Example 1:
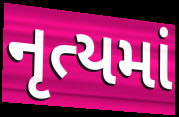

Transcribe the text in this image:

નૃત્યમાં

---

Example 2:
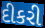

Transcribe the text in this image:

દીકરી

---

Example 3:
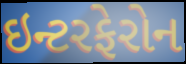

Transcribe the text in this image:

ઇન્ટરફેરોન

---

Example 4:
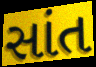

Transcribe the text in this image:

સાંત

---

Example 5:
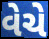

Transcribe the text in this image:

વેચે